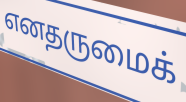
எனதருமைக்